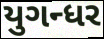
યુગન્ધર